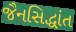
જૈનસિદ્ધાંત